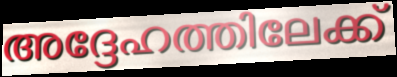
അദ്ദേഹത്തിലേക്ക്